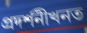
প্ৰদৰ্শনীখনত